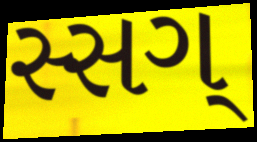
સ્સગ્